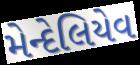
મેન્દેલિયેવ